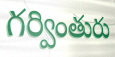
గర్వింతురు